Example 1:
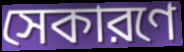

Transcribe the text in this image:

সেকারণে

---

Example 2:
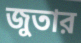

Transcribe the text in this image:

জুতার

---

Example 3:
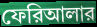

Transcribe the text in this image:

ফেরিআলার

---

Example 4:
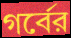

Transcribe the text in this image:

গর্বের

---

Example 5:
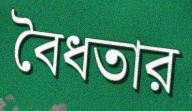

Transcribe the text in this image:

বৈধতার